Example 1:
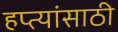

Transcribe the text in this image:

हप्त्यांसाठी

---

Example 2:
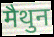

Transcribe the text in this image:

मैथुन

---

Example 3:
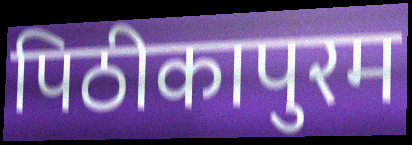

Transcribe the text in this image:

पिठीकापुरम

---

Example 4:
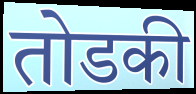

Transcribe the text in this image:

तोडकी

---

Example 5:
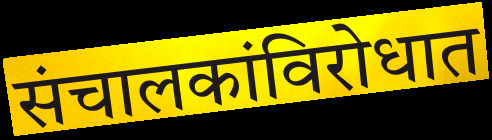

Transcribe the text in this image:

संचालकांविरोधात